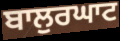
ਬਾਲੁਰਘਾਟ